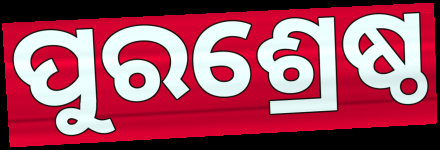
ପୁରଶ୍ରେଷ୍ଠ